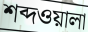
শব্দওয়ালা